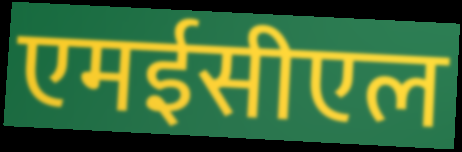
एमईसीएल